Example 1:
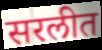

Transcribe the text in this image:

सरलीत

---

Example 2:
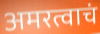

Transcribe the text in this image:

अमरत्वाचं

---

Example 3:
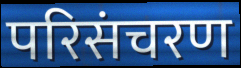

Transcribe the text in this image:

परिसंचरण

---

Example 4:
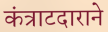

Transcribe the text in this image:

कंत्राटदाराने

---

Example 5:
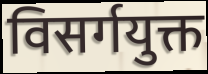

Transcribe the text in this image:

विसर्गयुक्त